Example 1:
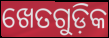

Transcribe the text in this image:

ଖେତଗୁଡ଼ିକ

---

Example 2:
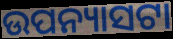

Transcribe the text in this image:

ଉପନ୍ୟାସଟା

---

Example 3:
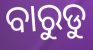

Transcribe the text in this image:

ବାରୁଡୁ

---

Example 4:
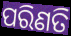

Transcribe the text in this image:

ପରିଣତି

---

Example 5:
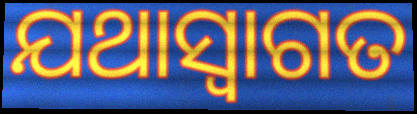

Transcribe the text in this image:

ଯଥାସ୍ଵାଗତ